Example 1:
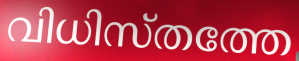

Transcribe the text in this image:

വിധിസ്തത്തേ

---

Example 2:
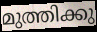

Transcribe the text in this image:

മുത്തിക്കു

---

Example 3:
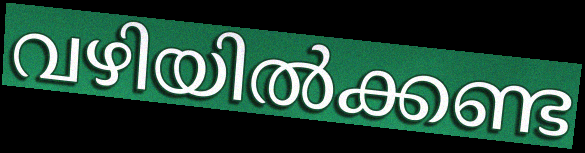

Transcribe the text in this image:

വഴിയിൽക്കണ്ട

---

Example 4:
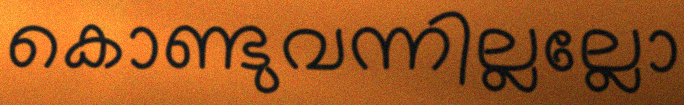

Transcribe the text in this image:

കൊണ്ടുവന്നില്ലല്ലോ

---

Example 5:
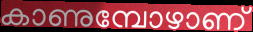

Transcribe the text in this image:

കാണുമ്പോഴാണ്